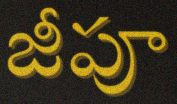
జీపూ